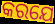
କରଯେ